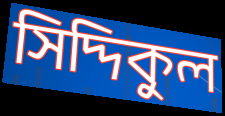
সিদ্দিকুল